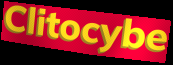
Clitocybe